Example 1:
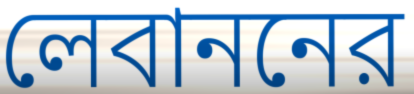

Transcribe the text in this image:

লেবাননের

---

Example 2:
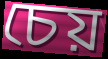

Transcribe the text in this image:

চেয়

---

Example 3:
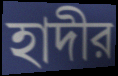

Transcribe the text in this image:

হাদীর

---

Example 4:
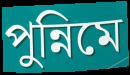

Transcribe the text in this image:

পুন্নিমে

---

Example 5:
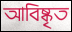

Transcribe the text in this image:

আবিষ্কৃত